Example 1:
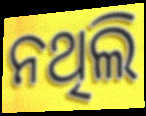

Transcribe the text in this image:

ନଥିଲି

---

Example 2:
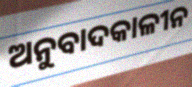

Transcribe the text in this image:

ଅନୁବାଦକାଳୀନ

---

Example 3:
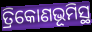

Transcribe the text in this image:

ତ୍ରିକୋଣଭୂମିସ୍ଥ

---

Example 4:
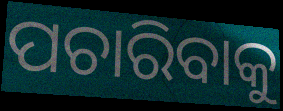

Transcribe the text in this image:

ପଚାରିବାକୁ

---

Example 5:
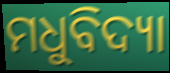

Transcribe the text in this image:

ମଧୁବିଦ୍ୟା